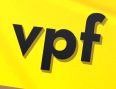
vpf